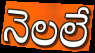
నెలలే